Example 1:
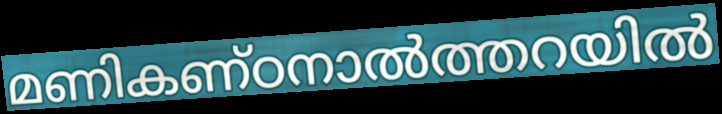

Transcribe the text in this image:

മണികണ്ഠനാൽത്തറയിൽ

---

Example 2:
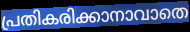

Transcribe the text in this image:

പ്രതികരിക്കാനാവാതെ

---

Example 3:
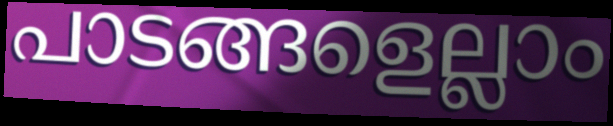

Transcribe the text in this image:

പാടങ്ങളെല്ലാം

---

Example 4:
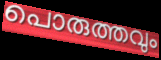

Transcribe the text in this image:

പൊരുത്തവും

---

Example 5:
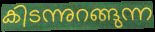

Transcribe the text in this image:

കിടന്നുറങ്ങുന്ന